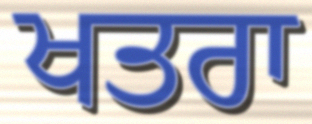
ਖਤਰਾ